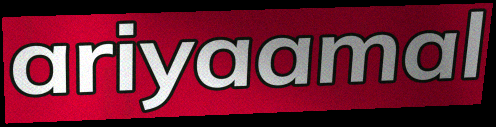
ariyaamal